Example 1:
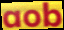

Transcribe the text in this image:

aob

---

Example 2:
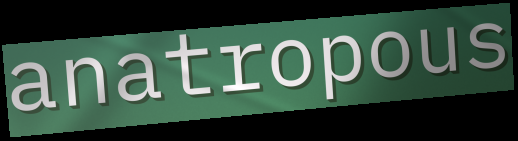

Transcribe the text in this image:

anatropous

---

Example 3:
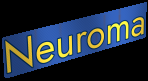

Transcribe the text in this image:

Neuroma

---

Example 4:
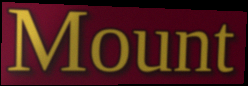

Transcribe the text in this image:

Mount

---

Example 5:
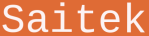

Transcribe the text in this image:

Saitek